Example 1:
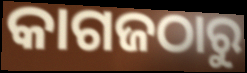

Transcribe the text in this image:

କାଗଜଠାରୁ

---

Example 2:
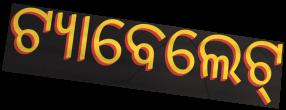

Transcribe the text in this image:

ଟ୍ୟାବେଲେଟ୍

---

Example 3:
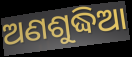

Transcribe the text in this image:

ଅଣଶୁଦ୍ଧିଆ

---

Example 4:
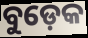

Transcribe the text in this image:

ବୁଡ଼େକ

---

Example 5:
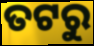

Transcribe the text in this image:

ତଟରୁ